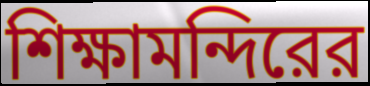
শিক্ষামন্দিরের